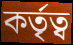
কর্তৃত্ব